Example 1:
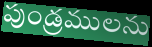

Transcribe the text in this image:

పుండ్రములను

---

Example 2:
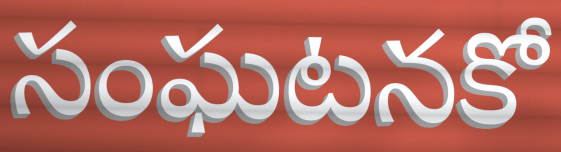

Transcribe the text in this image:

సంఘటనకో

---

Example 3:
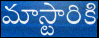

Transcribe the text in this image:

మాస్టారికి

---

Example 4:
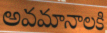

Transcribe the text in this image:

అవమానాలకి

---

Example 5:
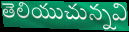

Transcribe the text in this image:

తెలియుచున్నవి